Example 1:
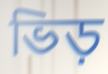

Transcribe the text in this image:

ভিড়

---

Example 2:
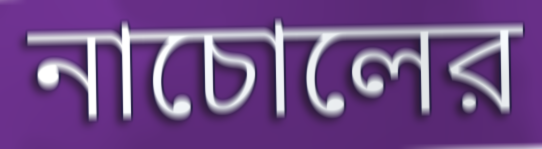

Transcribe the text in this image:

নাচোলের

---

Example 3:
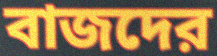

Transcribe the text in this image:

বাজদের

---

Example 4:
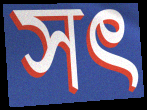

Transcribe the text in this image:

সৎ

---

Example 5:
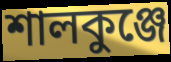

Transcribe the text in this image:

শালকুঞ্জে